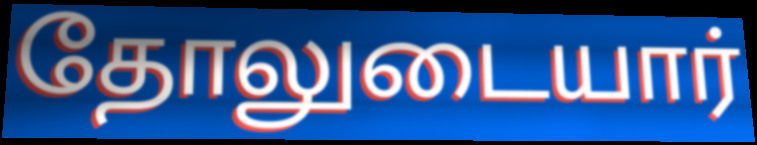
தோலுடையார்